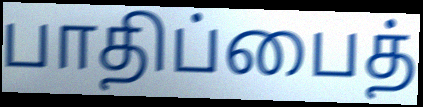
பாதிப்பைத்